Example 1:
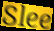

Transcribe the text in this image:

Slee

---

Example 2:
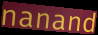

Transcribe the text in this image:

nanand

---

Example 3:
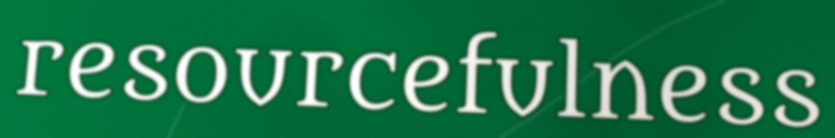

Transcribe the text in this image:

resourcefulness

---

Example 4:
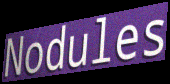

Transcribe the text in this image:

Nodules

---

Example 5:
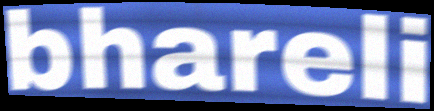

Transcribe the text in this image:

bhareli